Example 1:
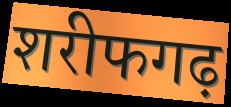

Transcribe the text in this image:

शरीफगढ़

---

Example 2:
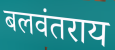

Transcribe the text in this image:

बलवंतराय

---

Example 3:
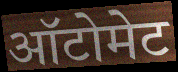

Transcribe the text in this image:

ऑटोमेट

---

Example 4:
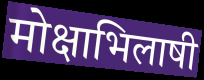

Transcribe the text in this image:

मोक्षाभिलाषी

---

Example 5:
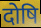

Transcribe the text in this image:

दोषि